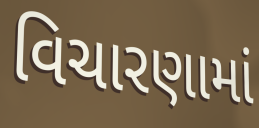
વિચારણામાં